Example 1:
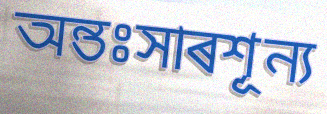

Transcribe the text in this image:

অন্তঃসাৰশূন্য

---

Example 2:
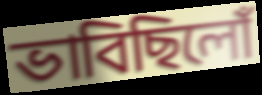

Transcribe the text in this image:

ভাবিছিলোঁ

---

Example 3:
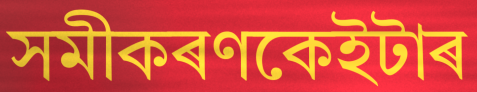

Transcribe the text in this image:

সমীকৰণকেইটাৰ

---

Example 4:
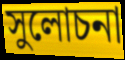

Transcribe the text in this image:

সুলোচনা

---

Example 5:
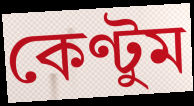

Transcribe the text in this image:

কেণ্টুম